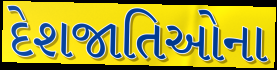
દેશજાતિઓના